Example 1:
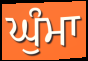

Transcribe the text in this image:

ਘੁੰਮਾ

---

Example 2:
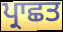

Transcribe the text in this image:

ਪ੍ਰਾਛਤ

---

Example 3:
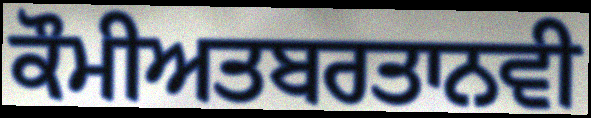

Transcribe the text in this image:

ਕੌਮੀਅਤਬਰਤਾਨਵੀ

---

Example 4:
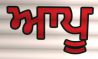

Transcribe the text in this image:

ਆਪੂ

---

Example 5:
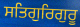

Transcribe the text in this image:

ਸਤਿਗੁਰਿਗੁਰੂ